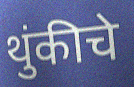
थुंकीचे